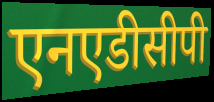
एनएडीसीपी